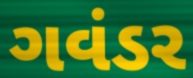
ગવંડર